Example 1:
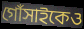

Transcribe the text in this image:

গোঁসাইকেও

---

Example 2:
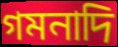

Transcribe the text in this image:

গমনাদি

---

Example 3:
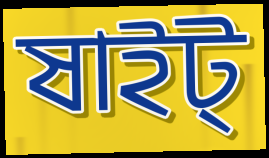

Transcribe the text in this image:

ষাইট্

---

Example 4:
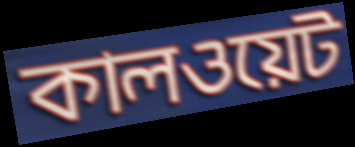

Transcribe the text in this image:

কালওয়েট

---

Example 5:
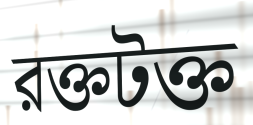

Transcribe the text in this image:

রক্তটক্ত